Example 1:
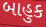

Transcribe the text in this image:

બાહુક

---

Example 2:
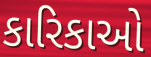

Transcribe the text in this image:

કારિકાઓ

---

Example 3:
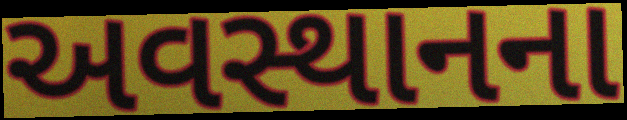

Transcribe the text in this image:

અવસ્થાનના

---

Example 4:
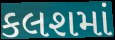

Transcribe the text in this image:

કલશમાં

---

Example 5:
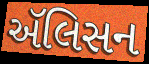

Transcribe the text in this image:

ઍલિસન